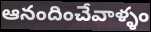
ఆనందించేవాళ్ళం